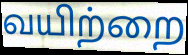
வயிற்றை